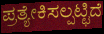
ಪ್ರತ್ಯೇಕಿಸಲ್ಪಟ್ಟಿದೆ